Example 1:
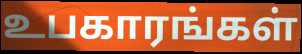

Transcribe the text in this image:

உபகாரங்கள்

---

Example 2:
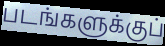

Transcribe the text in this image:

படங்களுக்குப்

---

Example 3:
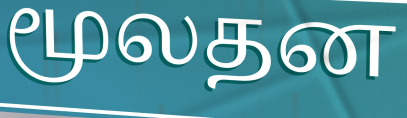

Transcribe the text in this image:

மூலதன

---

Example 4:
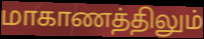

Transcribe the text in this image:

மாகாணத்திலும்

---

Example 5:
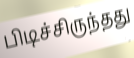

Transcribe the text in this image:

பிடிச்சிருந்தது